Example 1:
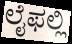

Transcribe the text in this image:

ಲೈಫಲ್ಲಿ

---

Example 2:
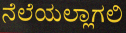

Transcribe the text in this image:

ನೆಲೆಯಲ್ಲಾಗಲಿ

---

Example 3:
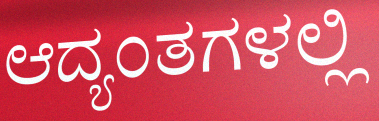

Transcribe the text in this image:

ಆದ್ಯಂತಗಳಲ್ಲಿ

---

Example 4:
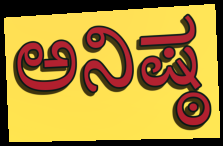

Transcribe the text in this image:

ಅನಿಷ್ಠ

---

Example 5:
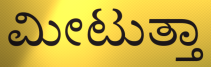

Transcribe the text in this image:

ಮೀಟುತ್ತಾ